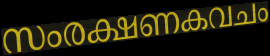
സംരക്ഷണകവചം